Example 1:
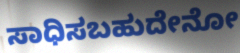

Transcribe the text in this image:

ಸಾಧಿಸಬಹುದೇನೋ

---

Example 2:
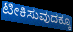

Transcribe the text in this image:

ಟೀಕಿಸುವುದಕ್ಕೂ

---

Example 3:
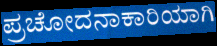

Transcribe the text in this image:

ಪ್ರಚೋದನಾಕಾರಿಯಾಗಿ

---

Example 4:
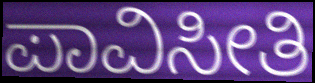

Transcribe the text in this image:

ಪಾವಿಸೀತಿ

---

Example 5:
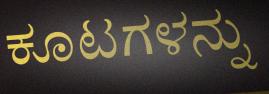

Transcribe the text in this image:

ಕೂಟಗಳನ್ನು